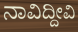
ನಾವಿದ್ದೀವಿ